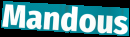
Mandous